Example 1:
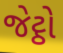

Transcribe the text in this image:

જેટ્ઠો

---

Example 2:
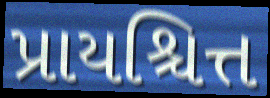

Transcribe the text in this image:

પ્રાયશ્ચિત્ત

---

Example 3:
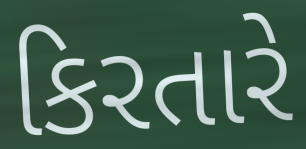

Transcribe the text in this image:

કિરતારે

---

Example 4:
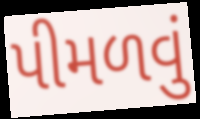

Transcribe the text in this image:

પીમળવું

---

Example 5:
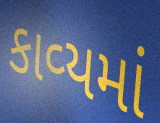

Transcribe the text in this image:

કાવ્‍યમાં